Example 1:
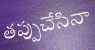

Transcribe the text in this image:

తప్పుచేసినా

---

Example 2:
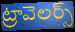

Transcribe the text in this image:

ట్రావెలర్స్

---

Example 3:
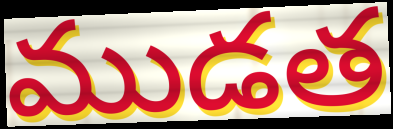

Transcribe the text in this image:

ముడత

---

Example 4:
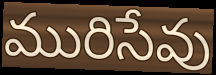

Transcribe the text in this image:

మురిసేవు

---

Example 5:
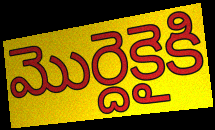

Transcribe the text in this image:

మొర్దెకైకి